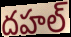
దహల్